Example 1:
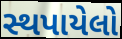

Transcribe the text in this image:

સ્થપાયેલો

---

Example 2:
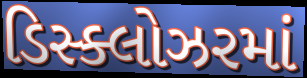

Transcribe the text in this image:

ડિસ્ક્લોઝરમાં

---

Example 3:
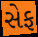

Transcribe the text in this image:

સેફ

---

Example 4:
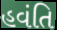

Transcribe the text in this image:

હવંતિ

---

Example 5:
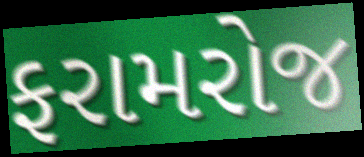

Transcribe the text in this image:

ફરામરોજ